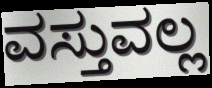
ವಸ್ತುವಲ್ಲ